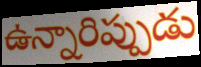
ఉన్నారిప్పుడు